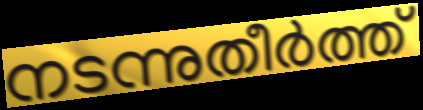
നടന്നുതീർത്ത്